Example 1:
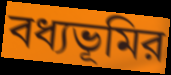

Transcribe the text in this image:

বধ্যভূমির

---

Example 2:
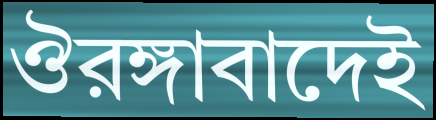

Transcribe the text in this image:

ঔরঙ্গাবাদেই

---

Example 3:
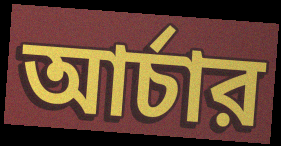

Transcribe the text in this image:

আর্চার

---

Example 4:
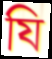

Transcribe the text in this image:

যি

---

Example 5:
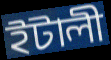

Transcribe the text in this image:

ইটালী